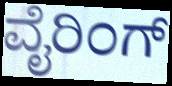
ವೈರಿಂಗ್